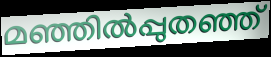
മഞ്ഞിൽപ്പുതഞ്ഞ്